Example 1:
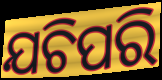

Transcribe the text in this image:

ଯଚିପରି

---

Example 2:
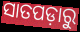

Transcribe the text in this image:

ସାତପଡ଼ାରୁ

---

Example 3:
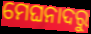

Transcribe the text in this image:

ମେଘନାଦରୁ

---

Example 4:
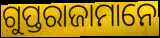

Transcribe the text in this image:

ଗୁପ୍ତରାଜାମାନେ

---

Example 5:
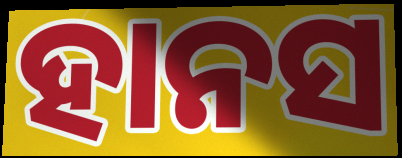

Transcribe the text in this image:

ହାନସ